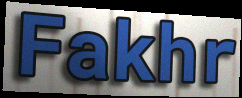
Fakhr